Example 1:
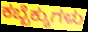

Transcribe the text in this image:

ಕಬ್ಬೆಕ್ಕುಗಳು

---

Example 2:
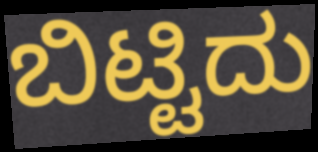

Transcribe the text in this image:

ಬಿಟ್ಟಿದು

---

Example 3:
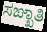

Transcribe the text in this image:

ಸಙ್ಖಾತಿ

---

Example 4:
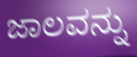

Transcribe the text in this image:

ಜಾಲವನ್ನು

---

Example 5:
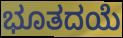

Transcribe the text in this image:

ಭೂತದಯೆ